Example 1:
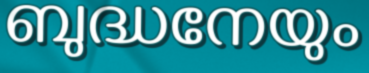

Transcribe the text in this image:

ബുദ്ധനേയും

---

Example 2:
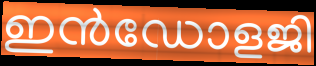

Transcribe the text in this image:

ഇൻഡോളജി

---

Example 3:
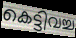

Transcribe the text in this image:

കെട്ടിവച്ച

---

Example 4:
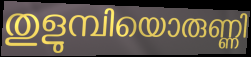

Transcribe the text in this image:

തുളുമ്പിയൊരുണ്ണി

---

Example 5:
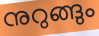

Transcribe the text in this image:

നുറുങ്ങും